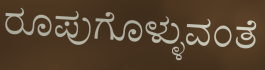
ರೂಪುಗೊಳ್ಳುವಂತೆ